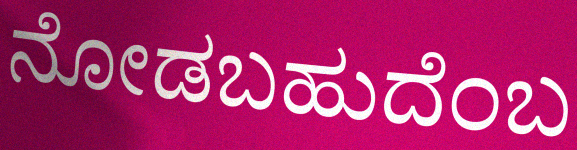
ನೋಡಬಹುದೆಂಬ